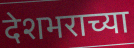
देशभराच्या